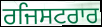
ਰਜਿਸਟਰਾਰ